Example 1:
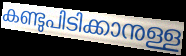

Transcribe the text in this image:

കണ്ടുപിടിക്കാനുള്ള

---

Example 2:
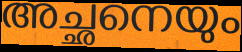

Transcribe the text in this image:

അച്ഛനെയും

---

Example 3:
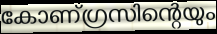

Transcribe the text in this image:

കോണ്ഗ്രസിന്റെയും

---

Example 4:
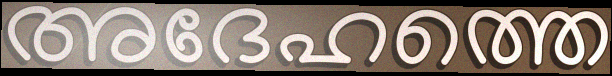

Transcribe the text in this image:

അദേഹത്തെ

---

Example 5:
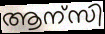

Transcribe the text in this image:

ആന്സി